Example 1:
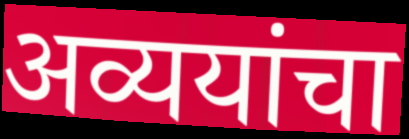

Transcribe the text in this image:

अव्ययांचा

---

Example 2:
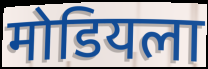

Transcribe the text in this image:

मोडियला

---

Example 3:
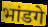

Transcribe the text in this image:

भांडगे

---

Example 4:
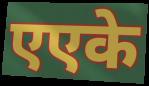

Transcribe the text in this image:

एएके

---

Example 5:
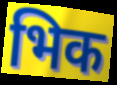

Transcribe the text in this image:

भिक